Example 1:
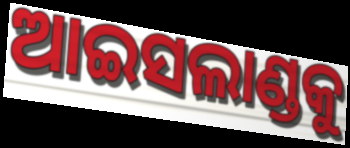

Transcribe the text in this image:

ଆଇସଲାଣ୍ଡକୁ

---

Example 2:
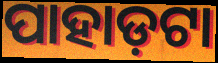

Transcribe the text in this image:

ପାହାଡ଼ଟା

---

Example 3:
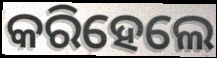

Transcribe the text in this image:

କରିହେଲେ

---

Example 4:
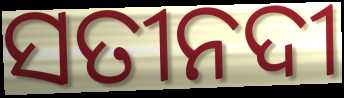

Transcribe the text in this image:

ସତୀନଦୀ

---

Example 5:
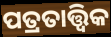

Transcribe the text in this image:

ପତ୍ରତାତ୍ତ୍ୱିକ